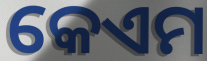
କେଏମ